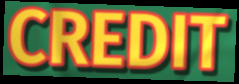
CREDIT